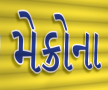
મેક્રોના